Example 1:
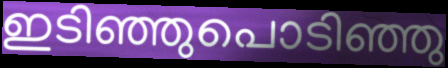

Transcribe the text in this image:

ഇടിഞ്ഞുപൊടിഞ്ഞു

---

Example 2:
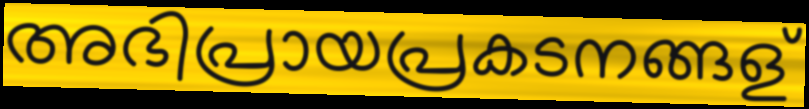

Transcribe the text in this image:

അഭിപ്രായപ്രകടനങ്ങള്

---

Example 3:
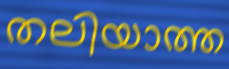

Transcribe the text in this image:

തലിയാത്ത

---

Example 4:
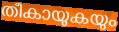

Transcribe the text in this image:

തീകായുകയും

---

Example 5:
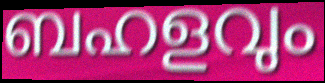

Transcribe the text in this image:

ബഹളവും